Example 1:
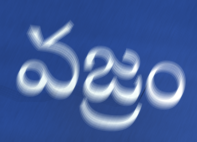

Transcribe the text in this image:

వజ్రం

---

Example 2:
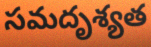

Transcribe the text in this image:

సమదృశ్యత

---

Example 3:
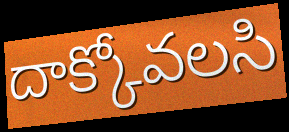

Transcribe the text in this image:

దాక్కోవలసి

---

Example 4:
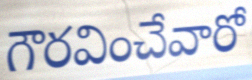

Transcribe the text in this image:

గౌరవించేవారో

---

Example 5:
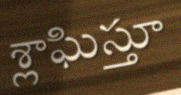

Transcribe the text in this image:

శ్లాఘిస్తూ